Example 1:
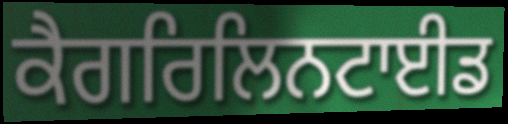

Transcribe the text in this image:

ਕੈਗਰਿਲਿਨਟਾਈਡ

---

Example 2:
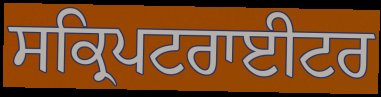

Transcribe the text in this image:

ਸਕ੍ਰਿਪਟਰਾਈਟਰ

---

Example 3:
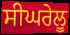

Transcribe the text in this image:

ਸੀਘਰੇਲੂ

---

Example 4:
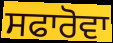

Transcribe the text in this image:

ਸਫਾਰੋਵਾ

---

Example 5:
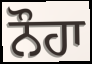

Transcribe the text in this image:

ਨੌਹਾ